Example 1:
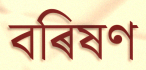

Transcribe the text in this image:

বৰিষণ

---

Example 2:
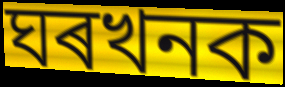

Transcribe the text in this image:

ঘৰখনক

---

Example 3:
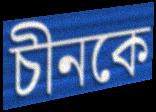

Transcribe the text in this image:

চীনকে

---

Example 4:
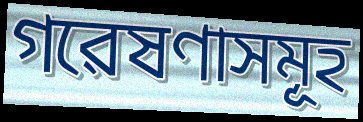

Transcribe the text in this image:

গৱেষণাসমূহ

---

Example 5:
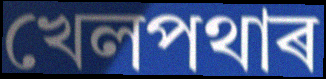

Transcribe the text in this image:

খেলপথাৰ